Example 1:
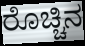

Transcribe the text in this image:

ರೊಚ್ಚಿನ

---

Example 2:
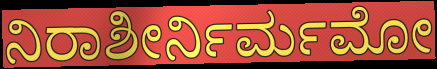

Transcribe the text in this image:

ನಿರಾಶೀರ್ನಿರ್ಮಮೋ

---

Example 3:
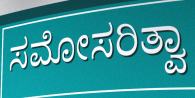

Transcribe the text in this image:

ಸಮೋಸರಿತ್ವಾ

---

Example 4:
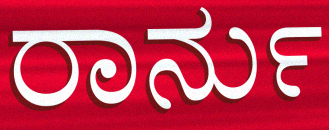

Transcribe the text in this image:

ರಾರ್ನು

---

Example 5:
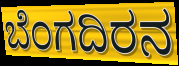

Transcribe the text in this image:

ಬೆಂಗದಿರನ